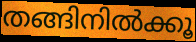
തങ്ങിനിൽക്കൂ